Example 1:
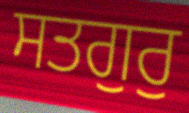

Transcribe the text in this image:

ਸਤਗੁਰੁ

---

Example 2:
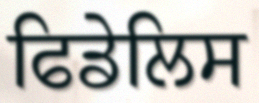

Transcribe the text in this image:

ਫਿਡੇਲਿਸ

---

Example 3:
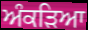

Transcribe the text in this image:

ਅੰਕੜਿਆ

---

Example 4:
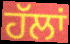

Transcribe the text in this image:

ਹੱਲਾਂ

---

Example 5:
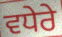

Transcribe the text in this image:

ਵਧੇਰੇ